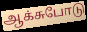
ஆக்சுபோடு